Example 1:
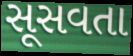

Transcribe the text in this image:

સૂસવતા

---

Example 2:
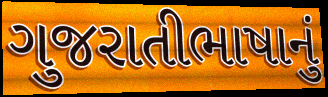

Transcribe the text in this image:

ગુજરાતીભાષાનું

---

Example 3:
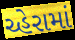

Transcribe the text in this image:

ચ્હેરામાં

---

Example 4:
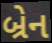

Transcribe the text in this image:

બ્રેન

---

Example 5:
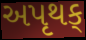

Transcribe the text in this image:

અપૃથક્